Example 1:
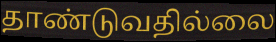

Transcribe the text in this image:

தாண்டுவதில்லை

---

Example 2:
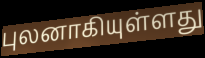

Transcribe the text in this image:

புலனாகியுள்ளது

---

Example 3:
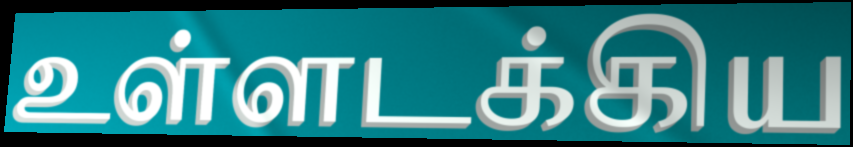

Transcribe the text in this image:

உள்ளடக்கிய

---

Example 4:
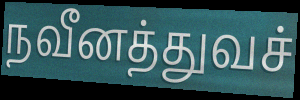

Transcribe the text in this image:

நவீனத்துவச்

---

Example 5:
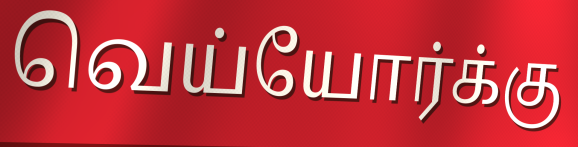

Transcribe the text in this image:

வெய்யோர்க்கு